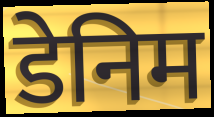
डेनिम